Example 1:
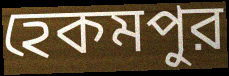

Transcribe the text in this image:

হেকমপুর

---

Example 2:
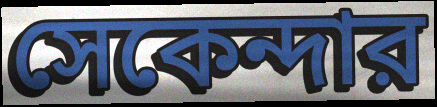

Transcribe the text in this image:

সেকেন্দার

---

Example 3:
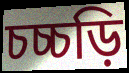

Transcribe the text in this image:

চচ্চড়ি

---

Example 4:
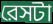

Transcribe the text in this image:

রেসটা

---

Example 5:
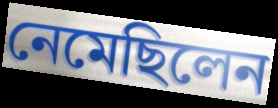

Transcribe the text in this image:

নেমেছিলেন